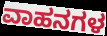
ವಾಹನಗಳ